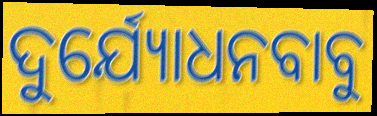
ଦୁର୍ଯ୍ୟୋଧନବାବୁ